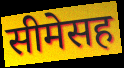
सीमेसह